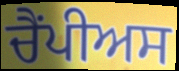
ਚੈਂਪੀਅਸ